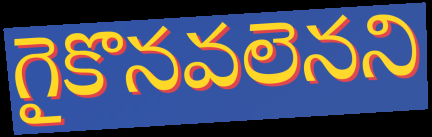
గైకొనవలెనని